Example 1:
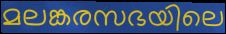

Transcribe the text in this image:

മലങ്കരസഭയിലെ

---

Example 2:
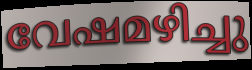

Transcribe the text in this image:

വേഷമഴിച്ചു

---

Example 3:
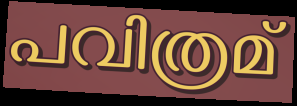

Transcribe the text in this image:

പവിത്രമ്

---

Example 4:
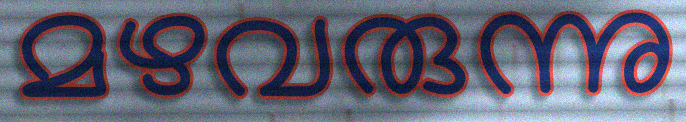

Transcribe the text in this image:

മഴവരുന്നു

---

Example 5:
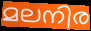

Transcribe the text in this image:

മലനിര